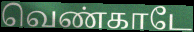
வெண்காடே